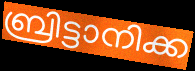
ബ്രിട്ടാനിക്ക